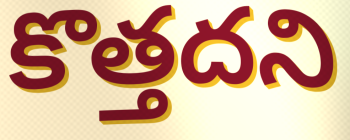
కొత్తదని